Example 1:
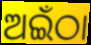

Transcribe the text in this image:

ଅଇଁଠା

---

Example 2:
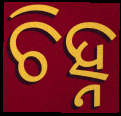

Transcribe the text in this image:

ଚିହ୍ନ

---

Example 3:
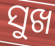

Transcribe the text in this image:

ସୁଖ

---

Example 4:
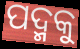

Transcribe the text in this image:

ପଦ୍ମକୁ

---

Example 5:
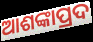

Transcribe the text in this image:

ଆଶଙ୍କାପ୍ରଦ